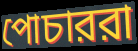
পোচাররা